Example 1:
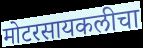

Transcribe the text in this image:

मोटरसायकलीचा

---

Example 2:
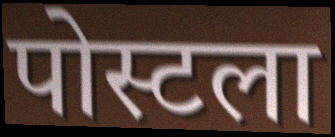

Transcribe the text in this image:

पोस्टला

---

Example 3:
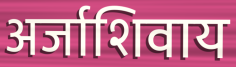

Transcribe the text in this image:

अर्जाशिवाय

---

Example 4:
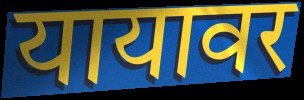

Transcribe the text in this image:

यायावर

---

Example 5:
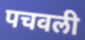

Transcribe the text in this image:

पचवली